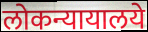
लोकन्यायालये